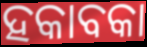
ହକାବକା